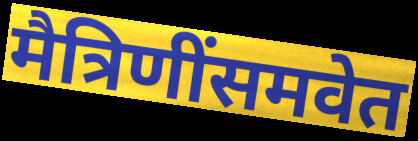
मैत्रिणींसमवेत